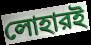
লোহারই